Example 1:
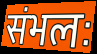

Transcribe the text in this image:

संभलः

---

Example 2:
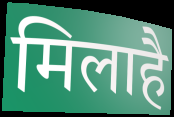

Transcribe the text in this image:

मिलाहै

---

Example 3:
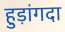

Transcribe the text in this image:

हुड़ांगदा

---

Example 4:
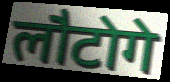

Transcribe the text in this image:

लौटोगे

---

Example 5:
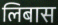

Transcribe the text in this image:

लिबास